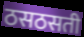
ठसठसती